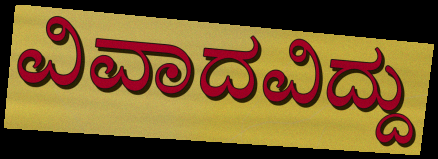
ವಿವಾದವಿದ್ದು